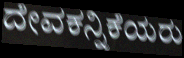
ದೇವಕನ್ನಿಕೆಯರು